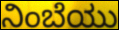
ನಿಂಬೆಯು